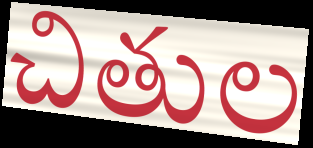
చితుల